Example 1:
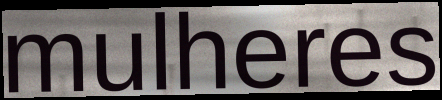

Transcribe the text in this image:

mulheres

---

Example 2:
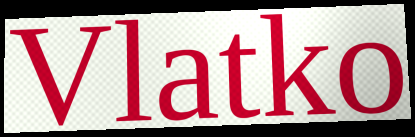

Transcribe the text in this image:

Vlatko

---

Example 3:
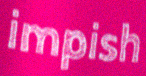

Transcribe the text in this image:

impish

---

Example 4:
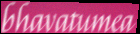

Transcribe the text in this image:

bhavatumea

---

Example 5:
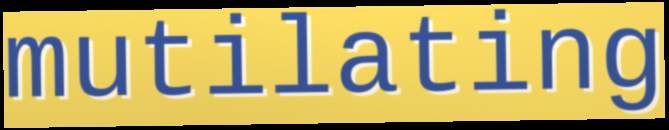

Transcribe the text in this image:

mutilating